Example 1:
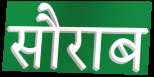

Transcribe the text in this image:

सौराब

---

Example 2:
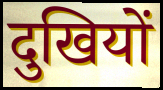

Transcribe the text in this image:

दुखियों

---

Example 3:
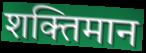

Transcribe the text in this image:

शक्तिमान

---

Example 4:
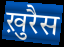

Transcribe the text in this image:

ख़ुरैस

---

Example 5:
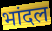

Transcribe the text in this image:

भांदल